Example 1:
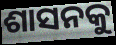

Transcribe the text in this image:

ଶାସନକୁ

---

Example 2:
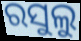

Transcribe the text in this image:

ରସୁଲୁ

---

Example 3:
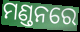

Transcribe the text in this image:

ମଣ୍ଡନରେ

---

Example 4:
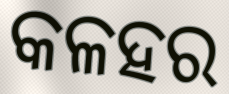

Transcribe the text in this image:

କଳହର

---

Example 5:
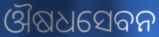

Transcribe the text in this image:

ଔଷଧସେବନ